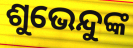
ଶୁଭେନ୍ଦୁଙ୍କ